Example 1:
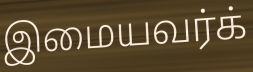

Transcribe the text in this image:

இமையவர்க்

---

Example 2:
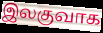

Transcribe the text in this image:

இலகுவாக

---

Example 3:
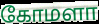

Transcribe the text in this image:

கோமளா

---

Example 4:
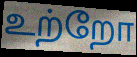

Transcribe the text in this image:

உற்றோ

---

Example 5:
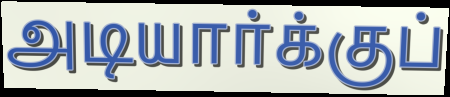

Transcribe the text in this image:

அடியார்க்குப்